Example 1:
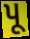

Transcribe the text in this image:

પૂ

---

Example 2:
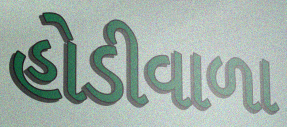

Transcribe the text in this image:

હોડીવાળા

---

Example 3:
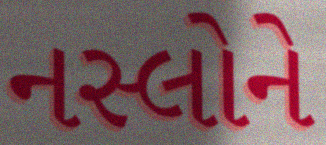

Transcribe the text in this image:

નસ્લોને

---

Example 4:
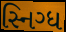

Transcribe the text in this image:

સ્નિગ્ધ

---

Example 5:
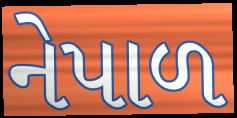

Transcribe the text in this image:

નેપાળ